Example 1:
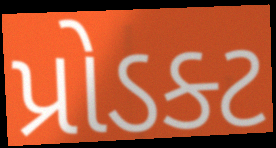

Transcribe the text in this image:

પ્રોડક્ટ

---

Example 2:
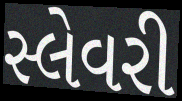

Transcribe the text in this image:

સ્લેવરી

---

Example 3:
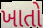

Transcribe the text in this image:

ખાતો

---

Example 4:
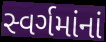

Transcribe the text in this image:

સ્વર્ગમાંનાં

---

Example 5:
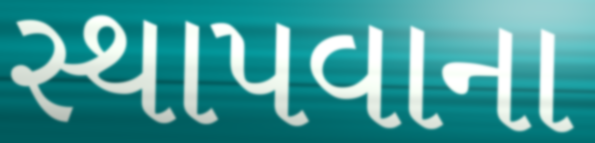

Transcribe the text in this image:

સ્થાપવાના